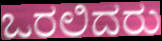
ಒರಲಿದರು